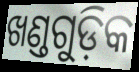
ଖଣ୍ଡଗୁଡ଼ିକ